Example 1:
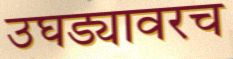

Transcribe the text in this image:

उघड्यावरच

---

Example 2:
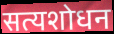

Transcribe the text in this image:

सत्यशोधन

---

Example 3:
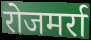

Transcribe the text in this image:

रोजमर्रा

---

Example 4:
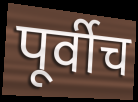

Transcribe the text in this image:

पूर्वीच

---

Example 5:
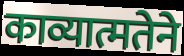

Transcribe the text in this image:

काव्यात्मतेने